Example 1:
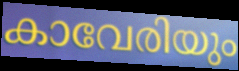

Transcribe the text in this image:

കാവേരിയും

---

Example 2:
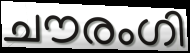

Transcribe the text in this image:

ചൗരംഗി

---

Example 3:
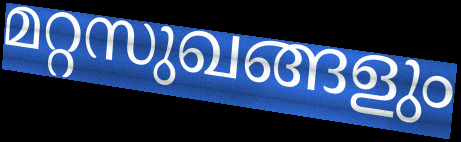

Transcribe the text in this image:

മറ്റസുഖങ്ങളും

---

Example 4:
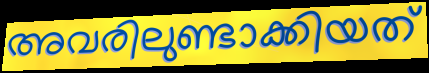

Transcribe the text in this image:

അവരിലുണ്ടാക്കിയത്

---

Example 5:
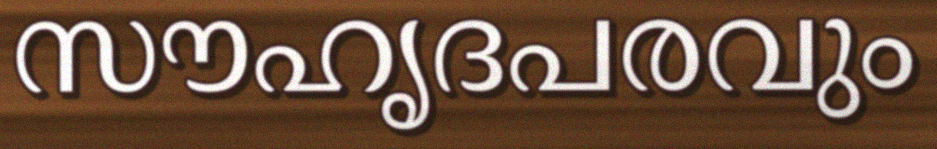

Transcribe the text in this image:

സൗഹൃദപരവും